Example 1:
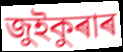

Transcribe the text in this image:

জুইকুৰাৰ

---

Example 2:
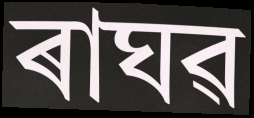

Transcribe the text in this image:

ৰাঘৱ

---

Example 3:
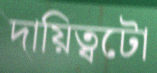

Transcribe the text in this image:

দায়িত্বটো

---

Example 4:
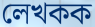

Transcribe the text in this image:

লেখকক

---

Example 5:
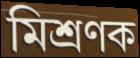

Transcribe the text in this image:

মিশ্ৰণক